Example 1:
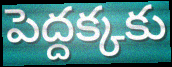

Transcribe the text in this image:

పెద్దక్కకు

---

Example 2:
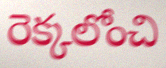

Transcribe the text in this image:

రెక్కలోంచి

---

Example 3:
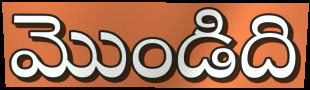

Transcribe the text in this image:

మొండిది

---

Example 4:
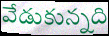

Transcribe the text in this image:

వేడుకున్నది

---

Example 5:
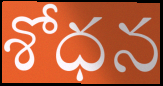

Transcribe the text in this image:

శోధన